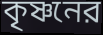
কৃষ্ণনের